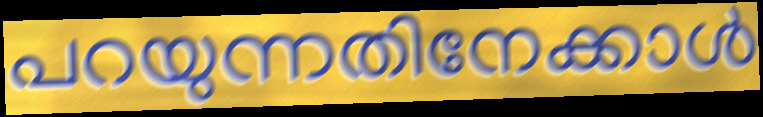
പറയുന്നതിനേക്കാൾ